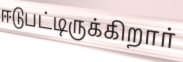
ஈடுபட்டிருக்கிறார்